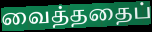
வைத்ததைப்